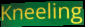
Kneeling